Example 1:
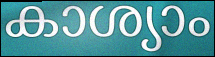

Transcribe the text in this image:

കാശ്യാം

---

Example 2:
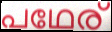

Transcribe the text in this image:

പഥേര്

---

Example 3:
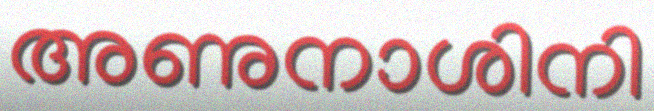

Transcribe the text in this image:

അണുനാശിനി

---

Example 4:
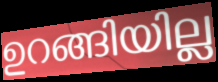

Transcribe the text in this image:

ഉറങ്ങിയില്ല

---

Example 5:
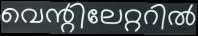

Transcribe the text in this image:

വെന്റിലേറ്ററിൽ